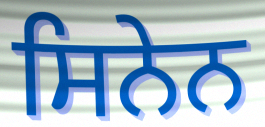
ਸਿਨੇਨ